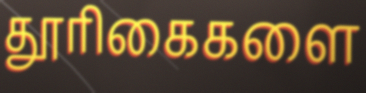
தூரிகைகளை